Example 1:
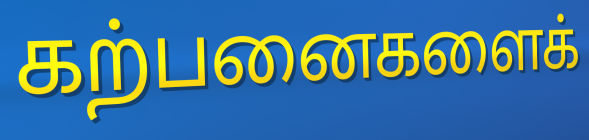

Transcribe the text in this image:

கற்பனைகளைக்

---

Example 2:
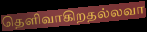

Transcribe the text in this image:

தெளிவாகிறதல்லவா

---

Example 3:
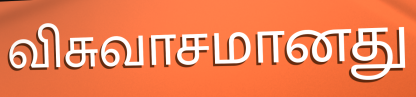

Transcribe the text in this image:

விசுவாசமானது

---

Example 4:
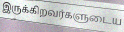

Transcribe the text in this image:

இருக்கிறவர்களுடைய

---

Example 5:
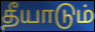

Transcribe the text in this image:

தீயாடும்